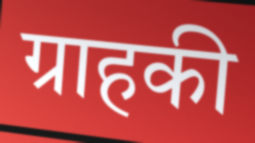
ग्राहकी